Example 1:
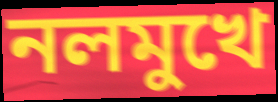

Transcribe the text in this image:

নলমুখে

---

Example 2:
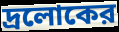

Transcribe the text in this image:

দ্রলোকের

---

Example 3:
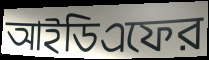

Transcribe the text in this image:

আইডিএফের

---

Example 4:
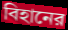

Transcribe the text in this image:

বিহানের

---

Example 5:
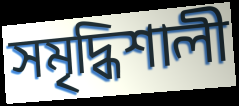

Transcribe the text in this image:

সমৃদ্ধিশালী